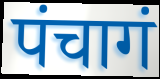
पंचागं